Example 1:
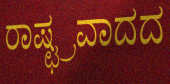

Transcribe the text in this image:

ರಾಷ್ಟ್ರವಾದದ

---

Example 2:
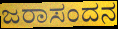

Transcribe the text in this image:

ಜರಾಸಂದನ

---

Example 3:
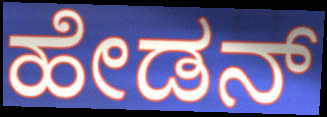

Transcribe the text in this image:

ಹೇಡನ್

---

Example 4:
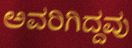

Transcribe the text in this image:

ಅವರಿಗಿದ್ದವು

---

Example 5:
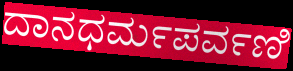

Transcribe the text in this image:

ದಾನಧರ್ಮಪರ್ವಣಿ